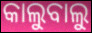
କାଲୁବାଲୁ